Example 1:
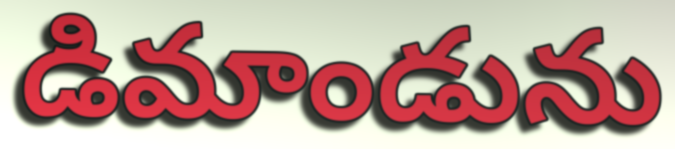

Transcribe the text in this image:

డిమాండును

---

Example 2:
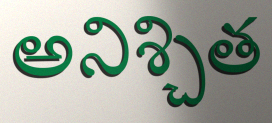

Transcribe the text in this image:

అనిశ్చిత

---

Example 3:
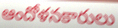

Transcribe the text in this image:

ఆందోళనకారులు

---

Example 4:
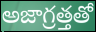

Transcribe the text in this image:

అజాగ్రత్తతో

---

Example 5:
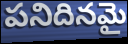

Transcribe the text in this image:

పనిదినమై